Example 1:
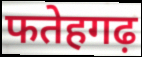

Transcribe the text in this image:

फतेहगढ़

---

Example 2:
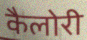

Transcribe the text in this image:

कैलोरी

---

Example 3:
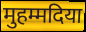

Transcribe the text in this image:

मुहम्मदिया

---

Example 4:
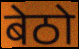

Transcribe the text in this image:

बेठो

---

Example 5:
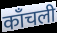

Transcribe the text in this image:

काँचली